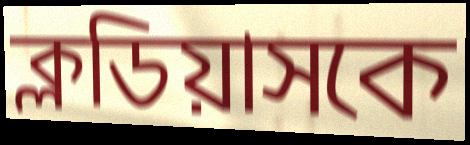
ক্লডিয়াসকে